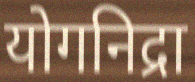
योगनिद्रा